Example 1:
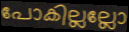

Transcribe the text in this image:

പോകില്ലല്ലോ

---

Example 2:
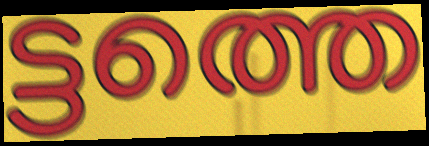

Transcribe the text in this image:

ട്ടത്തെ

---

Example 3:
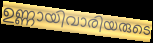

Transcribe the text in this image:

ഉണ്ണായിവാരിയരുടെ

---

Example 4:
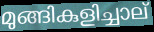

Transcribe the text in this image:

മുങ്ങികുളിച്ചാല്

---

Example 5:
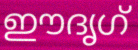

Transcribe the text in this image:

ഈദൃഗ്